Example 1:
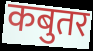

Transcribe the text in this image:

कबुतर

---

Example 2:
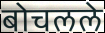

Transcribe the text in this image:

बोचलले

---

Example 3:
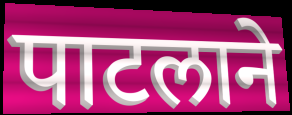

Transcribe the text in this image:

पाटलाने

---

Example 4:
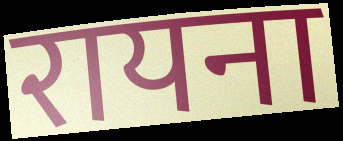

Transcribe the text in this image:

रायना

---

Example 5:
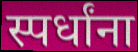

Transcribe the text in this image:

स्पर्धांना